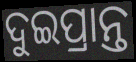
ଦୁଇପ୍ରାନ୍ତ